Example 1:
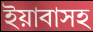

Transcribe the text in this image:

ইয়াবাসহ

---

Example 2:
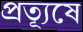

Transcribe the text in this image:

প্রত্যূষে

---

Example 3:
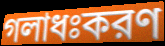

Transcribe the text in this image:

গলাধঃকরণ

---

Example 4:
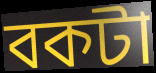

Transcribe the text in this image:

বকটা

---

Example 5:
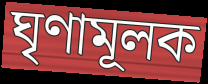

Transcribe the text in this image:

ঘৃণামূলক